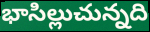
భాసిల్లుచున్నది